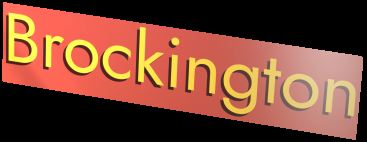
Brockington